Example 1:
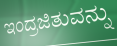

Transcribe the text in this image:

ಇಂದ್ರಜಿತುವನ್ನು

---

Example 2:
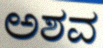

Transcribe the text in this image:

ಅಶವ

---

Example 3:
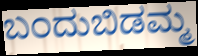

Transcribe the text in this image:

ಬಂದುಬಿಡಮ್ಮ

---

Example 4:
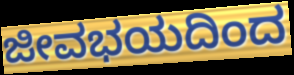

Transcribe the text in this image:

ಜೀವಭಯದಿಂದ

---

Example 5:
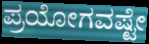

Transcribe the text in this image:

ಪ್ರಯೋಗವಷ್ಟೇ